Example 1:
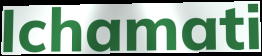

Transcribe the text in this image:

Ichamati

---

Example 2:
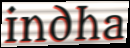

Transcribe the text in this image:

indha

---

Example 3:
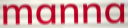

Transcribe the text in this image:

manna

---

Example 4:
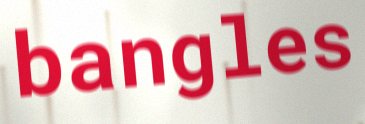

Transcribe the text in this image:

bangles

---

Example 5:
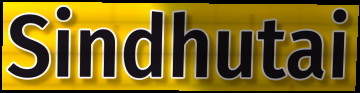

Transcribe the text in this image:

Sindhutai